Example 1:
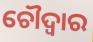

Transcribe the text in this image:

ଚୌଦ୍ବାର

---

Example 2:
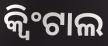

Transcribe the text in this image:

କ୍ୱିଂଟାଲ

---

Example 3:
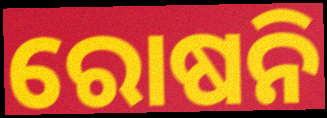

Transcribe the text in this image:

ରୋଷନି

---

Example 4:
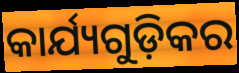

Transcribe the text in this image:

କାର୍ଯ୍ୟଗୁଡ଼ିକର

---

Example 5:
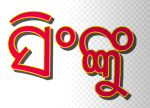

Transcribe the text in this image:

ସିଂଙ୍କୁ